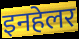
इनहेलर